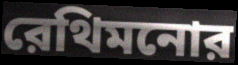
রেথিমনোর